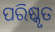
ପରିଷ୍କୃତ